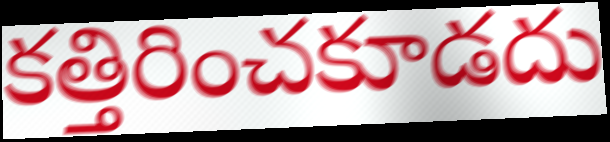
కత్తిరించకూడదు